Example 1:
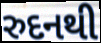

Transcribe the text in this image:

રુદનથી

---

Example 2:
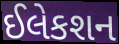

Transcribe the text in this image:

ઈલેકશન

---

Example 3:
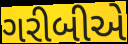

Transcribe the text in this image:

ગરીબીએ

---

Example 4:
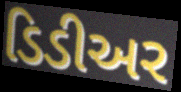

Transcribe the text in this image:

ડિડીઅર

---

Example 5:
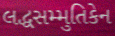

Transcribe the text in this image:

લદ્ધસમ્મુતિકેન